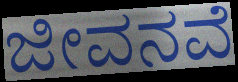
ಜೀವನವೆ